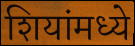
शियांमध्ये